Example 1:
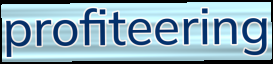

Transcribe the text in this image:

profiteering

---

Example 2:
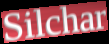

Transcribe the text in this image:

Silchar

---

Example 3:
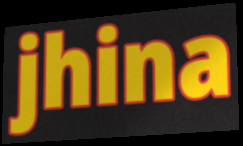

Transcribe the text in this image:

jhina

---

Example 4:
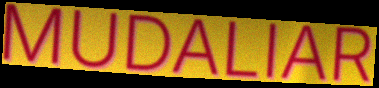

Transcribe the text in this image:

MUDALIAR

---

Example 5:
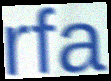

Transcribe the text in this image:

rfa